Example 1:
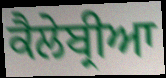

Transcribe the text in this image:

ਕੈਲੇਬ੍ਰੀਆ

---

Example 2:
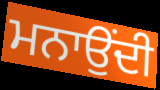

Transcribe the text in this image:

ਮਨਾਉਂਦੀ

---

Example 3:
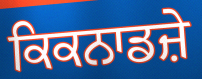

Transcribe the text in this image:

ਕਿਕਨਾਡਜ਼ੇ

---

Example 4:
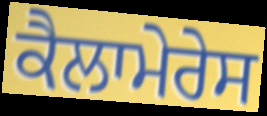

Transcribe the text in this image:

ਕੈਲਾਮੇਰੇਸ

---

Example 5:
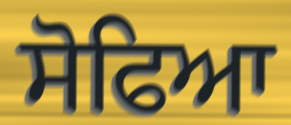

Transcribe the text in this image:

ਸੋਫਿਆ